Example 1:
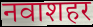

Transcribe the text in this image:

नवाशहर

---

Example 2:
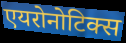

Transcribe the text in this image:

एयरोनोटिक्स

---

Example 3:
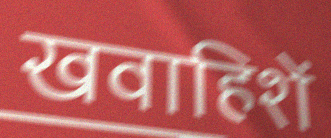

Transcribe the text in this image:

खवाहिशें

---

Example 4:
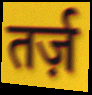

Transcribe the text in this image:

तर्ज़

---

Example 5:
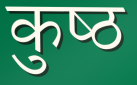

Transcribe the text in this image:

कुष्‍ठ